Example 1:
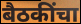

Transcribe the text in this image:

बैठकींचा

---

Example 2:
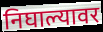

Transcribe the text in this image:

निघाल्यावर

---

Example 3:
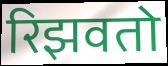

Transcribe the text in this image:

रिझवतो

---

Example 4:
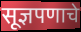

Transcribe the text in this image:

सूज्ञपणाचे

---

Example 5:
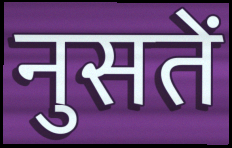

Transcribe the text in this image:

नुसतें